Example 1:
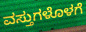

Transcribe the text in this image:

ವಸ್ತುಗಳೊಳಗೆ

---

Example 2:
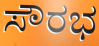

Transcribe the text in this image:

ಸೌರಭ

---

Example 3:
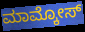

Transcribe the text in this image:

ಮಾಮ್ಕೋಸ್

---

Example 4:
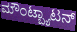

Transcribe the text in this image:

ಮೌಂಟ್ಬ್ಯಾಟನ್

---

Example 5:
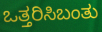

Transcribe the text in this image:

ಒತ್ತರಿಸಿಬಂತು